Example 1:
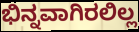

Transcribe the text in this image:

ಭಿನ್ನವಾಗಿರಲಿಲ್ಲ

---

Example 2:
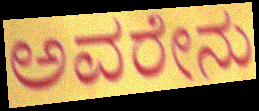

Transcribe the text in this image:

ಅವರೇನು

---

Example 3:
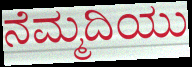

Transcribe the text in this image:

ನೆಮ್ಮದಿಯು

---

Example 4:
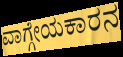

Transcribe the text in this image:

ವಾಗ್ಗೇಯಕಾರನ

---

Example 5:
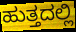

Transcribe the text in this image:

ಹುತ್ತದಲ್ಲಿ